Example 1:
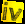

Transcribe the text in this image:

iv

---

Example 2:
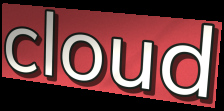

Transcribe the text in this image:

cloud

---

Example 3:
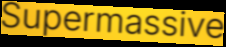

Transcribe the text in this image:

Supermassive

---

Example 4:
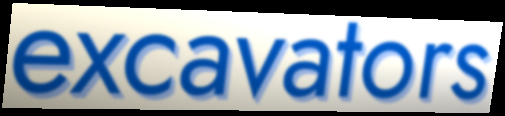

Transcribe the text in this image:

excavators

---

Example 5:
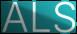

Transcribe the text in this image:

ALS